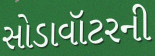
સોડાવૉટરની